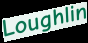
Loughlin